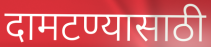
दामटण्यासाठी